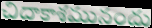
చిదాకాశమునందు